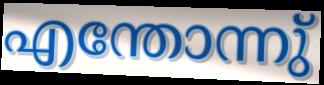
എന്തോന്നു്